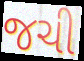
જચી